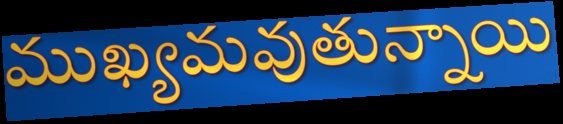
ముఖ్యమవుతున్నాయి